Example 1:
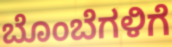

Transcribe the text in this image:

ಬೊಂಬೆಗಳಿಗೆ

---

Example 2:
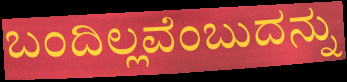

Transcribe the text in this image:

ಬಂದಿಲ್ಲವೆಂಬುದನ್ನು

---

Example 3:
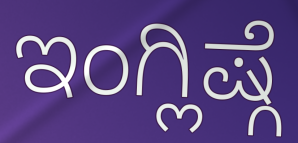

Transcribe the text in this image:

ಇಂಗ್ಲಿಷ್ಗೆ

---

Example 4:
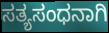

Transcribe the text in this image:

ಸತ್ಯಸಂಧನಾಗಿ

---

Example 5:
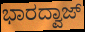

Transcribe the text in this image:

ಭಾರದ್ವಾಜ್